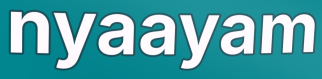
nyaayam